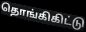
தொங்கிகிட்டு